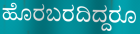
ಹೊರಬರದಿದ್ದರೂ